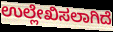
ಉಲ್ಲೇಖಿಸಲಾಗಿದೆ